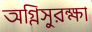
অগ্নিসুরক্ষা